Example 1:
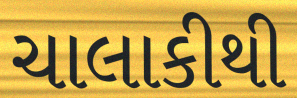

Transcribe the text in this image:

ચાલાકીથી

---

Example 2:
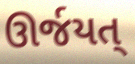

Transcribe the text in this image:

ઊર્જયત્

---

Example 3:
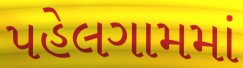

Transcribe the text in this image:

પહેલગામમાં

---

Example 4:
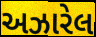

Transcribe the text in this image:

અઝારેલ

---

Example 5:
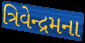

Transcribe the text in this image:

ત્રિવેન્દ્રમના